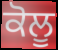
ਕੋਲੂ